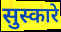
सुस्कारे